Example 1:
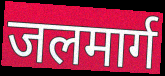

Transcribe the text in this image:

जलमार्ग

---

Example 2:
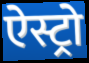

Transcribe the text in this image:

ऐस्ट्रो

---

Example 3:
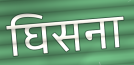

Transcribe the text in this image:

घिसना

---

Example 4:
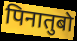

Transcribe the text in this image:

पिनातुबो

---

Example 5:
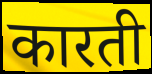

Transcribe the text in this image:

कारती